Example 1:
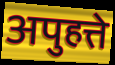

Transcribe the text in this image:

अपुहत्ते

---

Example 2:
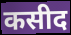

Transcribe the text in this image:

कसीद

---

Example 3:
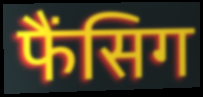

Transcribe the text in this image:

फैंसिग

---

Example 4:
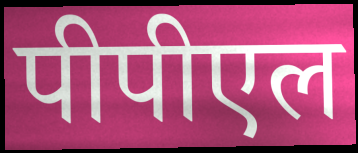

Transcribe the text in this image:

पीपीएल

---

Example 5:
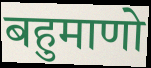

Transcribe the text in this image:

बहुमाणो